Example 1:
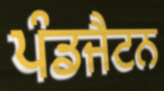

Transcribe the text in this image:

ਪੰਡਜੈਟਨ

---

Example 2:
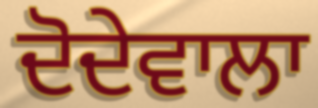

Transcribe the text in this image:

ਦੋਦੇਵਾਲਾ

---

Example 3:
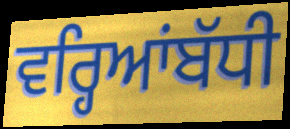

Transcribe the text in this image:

ਵਰ੍ਹਿਆਂਬੱਧੀ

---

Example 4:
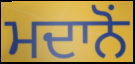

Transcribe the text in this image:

ਮਦਾਨੋਂ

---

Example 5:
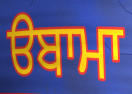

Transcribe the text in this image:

ੳਬਾਮਾ